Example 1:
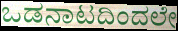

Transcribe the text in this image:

ಒಡನಾಟದಿಂದಲೇ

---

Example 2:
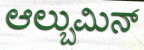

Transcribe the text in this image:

ಆಲ್ಬುಮಿನ್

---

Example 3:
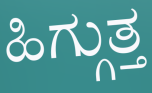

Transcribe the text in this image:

ಹಿಗ್ಗುತ್ತ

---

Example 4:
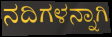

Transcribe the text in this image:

ನದಿಗಳನ್ನಾಗಿ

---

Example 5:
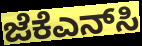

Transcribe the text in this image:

ಜೆಕೆಎನ್‌ಸಿ